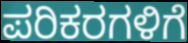
ಪರಿಕರಗಳಿಗೆ